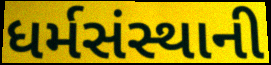
ધર્મસંસ્થાની